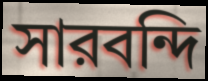
সারবন্দি